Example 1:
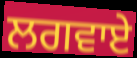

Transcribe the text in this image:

ਲਗਵਾਏ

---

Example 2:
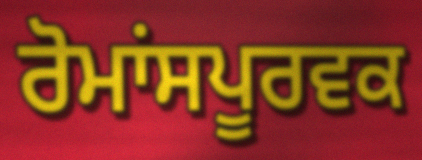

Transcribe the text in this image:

ਰੋਮਾਂਸਪੂਰਵਕ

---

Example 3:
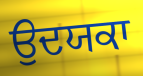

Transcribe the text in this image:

ਉਦਯਕਾ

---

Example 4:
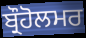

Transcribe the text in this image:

ਬ੍ਰੌਹੋਲਮਰ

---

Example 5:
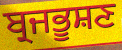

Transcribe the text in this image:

ਬ੍ਰਜਭੂਸ਼ਣ